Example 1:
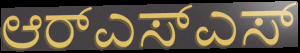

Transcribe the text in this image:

ಆರ್‌ಎಸ್ಎಸ್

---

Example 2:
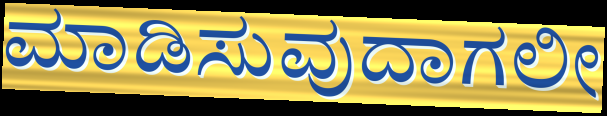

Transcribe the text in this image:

ಮಾಡಿಸುವುದಾಗಲೀ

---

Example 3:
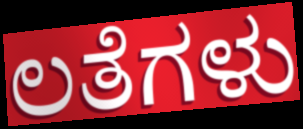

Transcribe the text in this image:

ಲತೆಗಳು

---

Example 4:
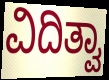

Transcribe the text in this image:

ವಿದಿತ್ವಾ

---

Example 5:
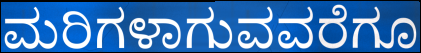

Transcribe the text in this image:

ಮರಿಗಳಾಗುವವರೆಗೂ